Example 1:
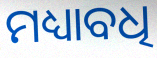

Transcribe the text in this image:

ମଧ୍ୟାବଧି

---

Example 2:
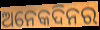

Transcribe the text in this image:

ଅନେକଦିନର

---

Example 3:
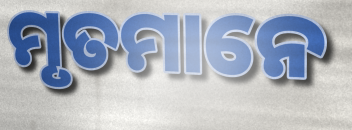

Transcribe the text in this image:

ମୃତମାନେ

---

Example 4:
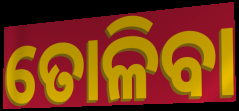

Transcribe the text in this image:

ତୋଳିବା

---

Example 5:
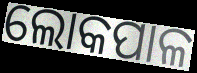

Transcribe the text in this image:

ଲୋକପାଳ